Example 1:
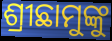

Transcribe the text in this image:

ଶ୍ରୀଛାମୁଙ୍କୁ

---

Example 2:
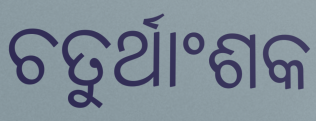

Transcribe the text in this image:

ଚତୁର୍ଥାଂଶକ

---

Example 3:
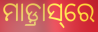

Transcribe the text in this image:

ମାଡ଼୍ରାସ୍‌ରେ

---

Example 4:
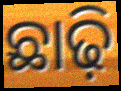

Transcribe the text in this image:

ଛାଢ଼ି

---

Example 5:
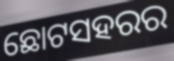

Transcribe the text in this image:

ଛୋଟସହରର